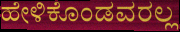
ಹೇಳಿಕೊಂಡವರಲ್ಲ